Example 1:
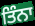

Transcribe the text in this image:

ਤਿੰਨਾ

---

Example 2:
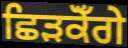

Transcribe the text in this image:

ਛਿੜਕੋਁਗੇ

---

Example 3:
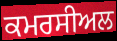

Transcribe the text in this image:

ਕਮਰਸੀਅਲ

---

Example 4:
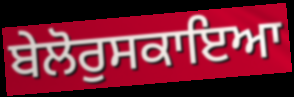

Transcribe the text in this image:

ਬੇਲੋਰੁਸਕਾਇਆ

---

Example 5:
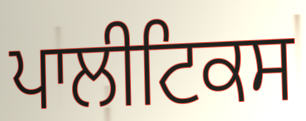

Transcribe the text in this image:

ਪਾਲੀਟਿਕਸ